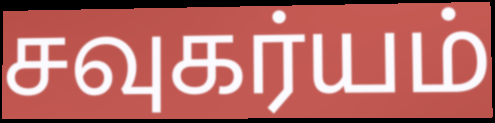
சவுகர்யம்